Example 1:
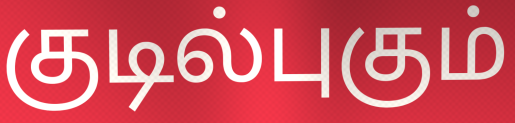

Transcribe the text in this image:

குடில்புகும்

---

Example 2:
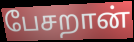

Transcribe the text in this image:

பேசறான்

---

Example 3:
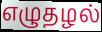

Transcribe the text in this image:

எழுதழல்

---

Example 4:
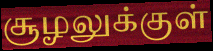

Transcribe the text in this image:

சூழலுக்குள்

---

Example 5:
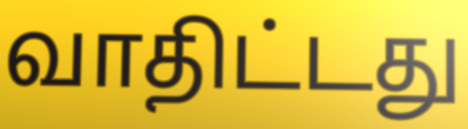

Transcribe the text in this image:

வாதிட்டது